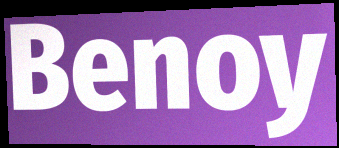
Benoy